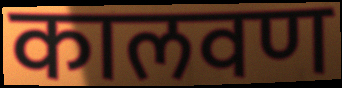
कालवण